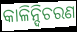
କାଳିନ୍ଦିଚରଣ